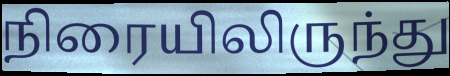
நிரையிலிருந்து